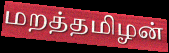
மறத்தமிழன்